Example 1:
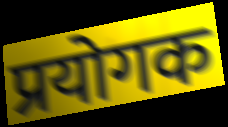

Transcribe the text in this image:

प्रयोगक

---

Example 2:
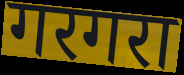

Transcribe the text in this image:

गरगरा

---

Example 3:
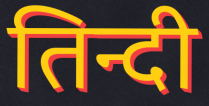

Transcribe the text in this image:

तिन्दी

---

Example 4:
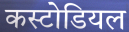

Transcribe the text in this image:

कस्टोडियल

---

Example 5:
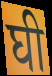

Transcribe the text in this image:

घी